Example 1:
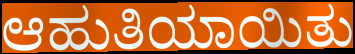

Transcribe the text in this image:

ಆಹುತಿಯಾಯಿತು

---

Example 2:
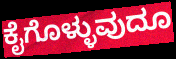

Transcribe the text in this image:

ಕೈಗೊಳ್ಳುವುದೂ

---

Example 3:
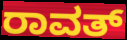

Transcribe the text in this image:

ರಾವತ್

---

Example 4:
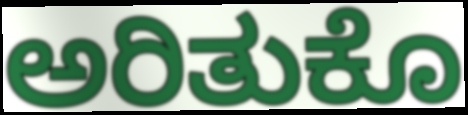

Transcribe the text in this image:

ಅರಿತುಕೊ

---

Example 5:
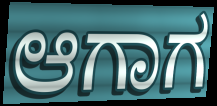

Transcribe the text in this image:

ಆಗಾಗ